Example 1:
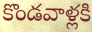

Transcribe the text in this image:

కొండవాళ్లకి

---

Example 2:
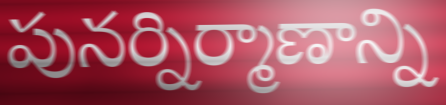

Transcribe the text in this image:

పునర్నిర్మాణాన్ని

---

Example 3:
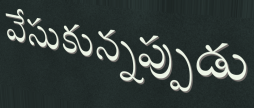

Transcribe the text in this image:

వేసుకున్నప్పుడు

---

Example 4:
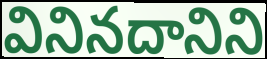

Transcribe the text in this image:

వినినదానిని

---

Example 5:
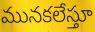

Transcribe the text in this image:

మునకలేస్తూ